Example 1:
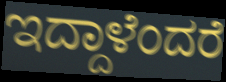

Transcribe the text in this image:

ಇದ್ದಾಳೆಂದರೆ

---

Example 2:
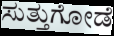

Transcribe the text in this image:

ಸುತ್ತುಗೋಡೆ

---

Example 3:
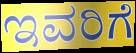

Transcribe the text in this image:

ಇವರಿಗೆ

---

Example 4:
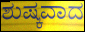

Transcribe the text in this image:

ಶುಷ್ಕವಾದ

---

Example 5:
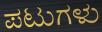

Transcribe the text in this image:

ಪಟುಗಳು